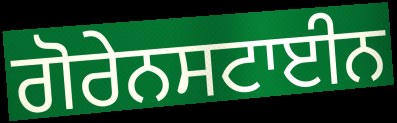
ਗੋਰੇਨਸਟਾਈਨ